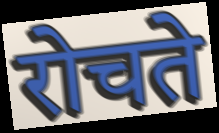
रोचते